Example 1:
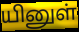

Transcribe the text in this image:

யினுள்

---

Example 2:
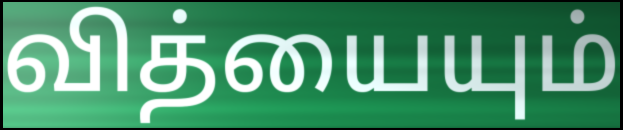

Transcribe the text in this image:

வித்யையும்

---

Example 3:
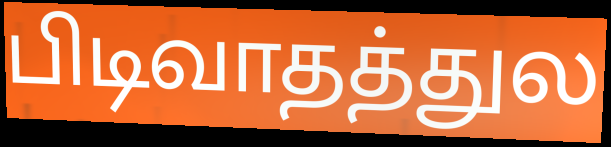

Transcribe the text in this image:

பிடிவாதத்துல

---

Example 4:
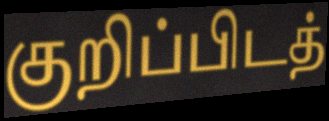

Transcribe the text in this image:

குறிப்பிடத்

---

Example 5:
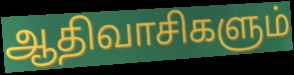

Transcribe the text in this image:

ஆதிவாசிகளும்